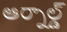
ఆర్నాల్డ్